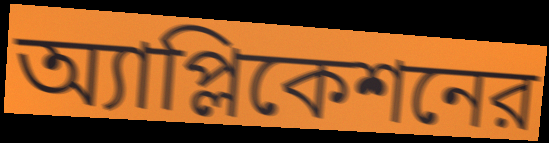
অ্যাপ্লিকেশনের